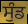
ਸੁੰਡ